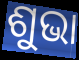
ଶୁଭା